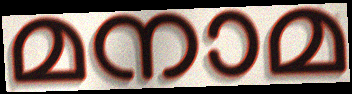
മനാമ